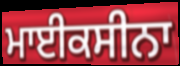
ਮਾਈਕਸੀਨਾ